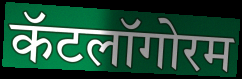
कॅटलॉगोरम